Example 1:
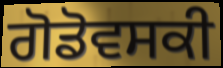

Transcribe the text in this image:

ਗੋਡੋਵਸਕੀ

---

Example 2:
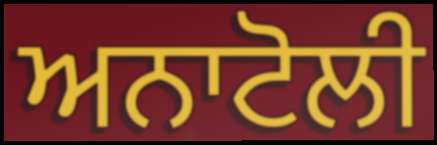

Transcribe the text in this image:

ਅਨਾਟੋਲੀ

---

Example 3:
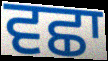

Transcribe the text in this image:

ਵਛਾ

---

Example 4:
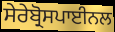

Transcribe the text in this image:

ਸੇਰੇਬ੍ਰੋਸਪਾਈਨਲ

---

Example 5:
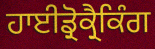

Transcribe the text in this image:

ਹਾਈਡ੍ਰੋਕ੍ਰੈਕਿੰਗ